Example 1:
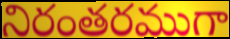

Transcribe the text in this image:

నిరంతరముగా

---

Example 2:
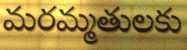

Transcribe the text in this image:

మరమ్మతులకు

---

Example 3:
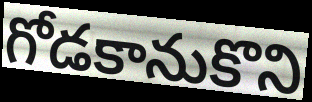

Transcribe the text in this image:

గోడకానుకొని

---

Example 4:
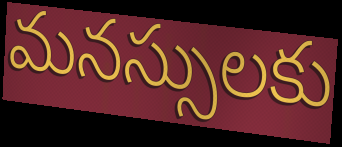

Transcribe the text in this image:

మనస్సులకు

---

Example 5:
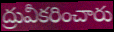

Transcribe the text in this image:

ద్రువీకరించారు